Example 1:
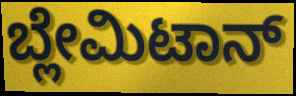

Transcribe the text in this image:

ಬ್ಲೇಮಿಟಾನ್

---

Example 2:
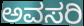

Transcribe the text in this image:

ಅವಸರಿ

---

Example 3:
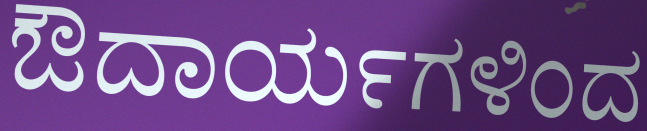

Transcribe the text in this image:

ಔದಾರ್ಯಗಳಿಂದ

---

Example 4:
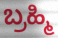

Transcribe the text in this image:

ಬ್ರಹ್ಮಿ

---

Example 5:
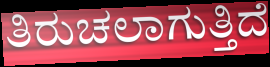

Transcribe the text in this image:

ತಿರುಚಲಾಗುತ್ತಿದೆ